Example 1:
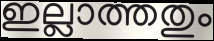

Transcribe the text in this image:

ഇല്ലാത്തതും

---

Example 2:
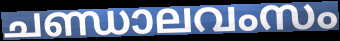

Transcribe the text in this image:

ചണ്ഡാലവംസം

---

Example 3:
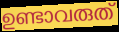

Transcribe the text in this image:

ഉണ്ടാവരുത്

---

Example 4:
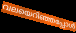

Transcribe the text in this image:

വലയെറിഞ്ഞപ്പോൾ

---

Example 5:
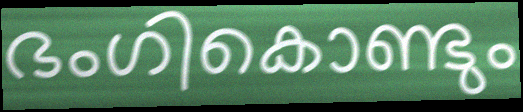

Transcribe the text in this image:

ഭംഗികൊണ്ടും